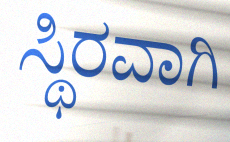
ಸ್ಥಿರವಾಗಿ